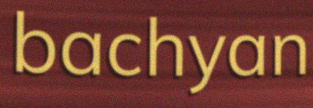
bachyan